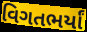
વિગતભર્યાં